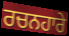
ਰਚਨਹਾਰੇ